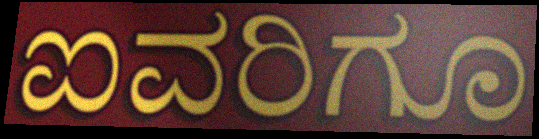
ಐವರಿಗೂ